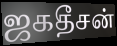
ஜகதீசன்